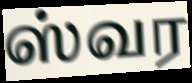
ஸ்வர